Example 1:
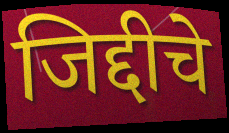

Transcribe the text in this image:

जिद्दीचे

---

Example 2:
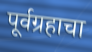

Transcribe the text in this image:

पूर्वग्रहाचा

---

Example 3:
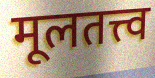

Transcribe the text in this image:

मूलतत्त्व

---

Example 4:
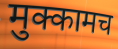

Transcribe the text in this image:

मुक्कामच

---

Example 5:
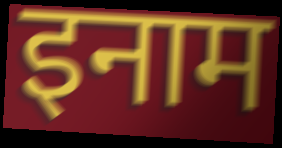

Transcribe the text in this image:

इनाम